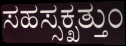
ಸಹಸ್ಸಕ್ಖತ್ತುಂ